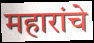
महारांचे